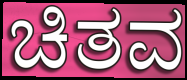
ಚಿತವ